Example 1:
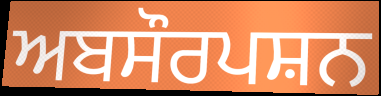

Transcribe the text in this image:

ਅਬਸੌਰਪਸ਼ਨ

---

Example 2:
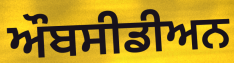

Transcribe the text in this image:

ਔਬਸੀਡੀਅਨ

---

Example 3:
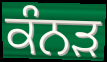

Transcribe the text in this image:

ਕੰਨਡ਼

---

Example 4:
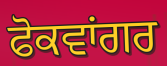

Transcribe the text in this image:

ਫੋਕਵਾਂਗਰ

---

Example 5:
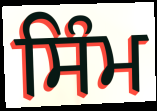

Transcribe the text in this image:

ਸਿੰਮ